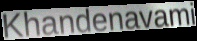
Khandenavami